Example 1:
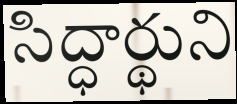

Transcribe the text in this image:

సిద్ధార్థుని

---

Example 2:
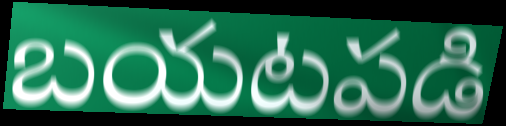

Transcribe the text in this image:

బయటపడి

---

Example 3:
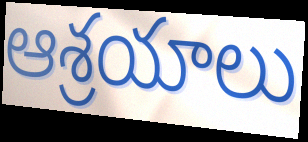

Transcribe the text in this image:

ఆశ్రయాలు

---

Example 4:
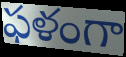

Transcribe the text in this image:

ఫళంగా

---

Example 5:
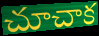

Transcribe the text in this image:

చూచాక